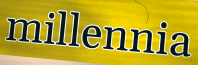
millennia